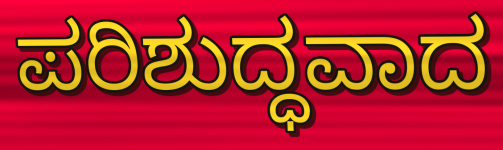
ಪರಿಶುದ್ಧವಾದ